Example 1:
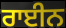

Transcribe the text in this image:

ਰਾਈਨ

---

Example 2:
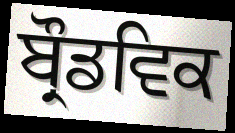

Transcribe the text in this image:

ਬ੍ਰੌਡਵਿਕ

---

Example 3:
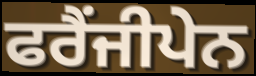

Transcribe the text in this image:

ਫਰੈਂਜੀਪੇਨ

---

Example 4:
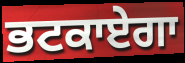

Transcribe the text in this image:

ਭਟਕਾਏਗਾ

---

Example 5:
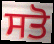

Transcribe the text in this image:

ਸਤੋ